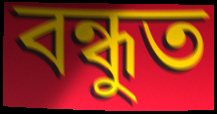
বন্ধুত